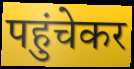
पहुंचेकर